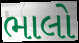
ભાલો